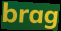
brag